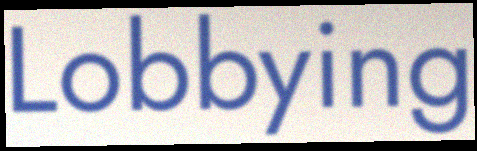
Lobbying